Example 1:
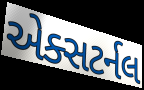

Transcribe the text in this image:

એક્સટર્નલ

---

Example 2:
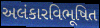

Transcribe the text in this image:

અલંકારવિભૂષિત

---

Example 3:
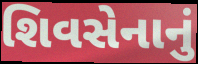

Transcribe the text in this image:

શિવસેનાનું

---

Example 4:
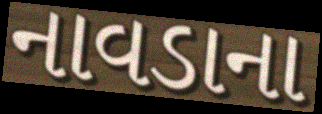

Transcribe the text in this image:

નાવડાના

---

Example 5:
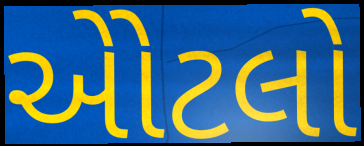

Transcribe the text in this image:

એોટલો